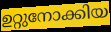
ഉറ്റുനോക്കിയ